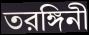
তরঙ্গিনী